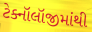
ટેક્નૉલૉજીમાંથી